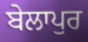
ਬੇਲਾਪੁਰ